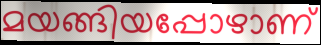
മയങ്ങിയപ്പോഴാണ്